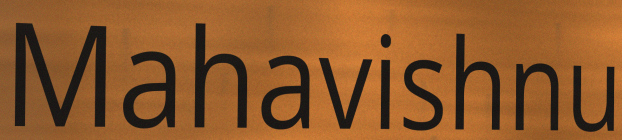
Mahavishnu